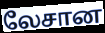
லேசான